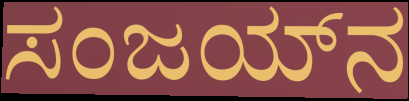
ಸಂಜಯ್‌ನ